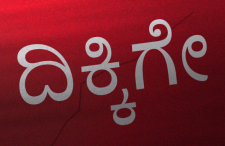
ದಿಕ್ಕಿಗೇ